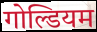
गोल्डियम